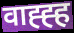
वाह्ह्ह